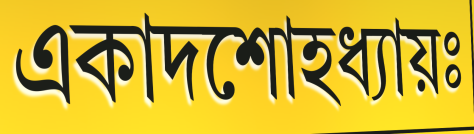
একাদশোহধ্যায়ঃ